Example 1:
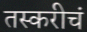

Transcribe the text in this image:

तस्करीचं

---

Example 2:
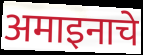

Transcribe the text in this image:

अमाइनाचे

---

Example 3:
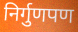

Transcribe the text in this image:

निर्गुणपण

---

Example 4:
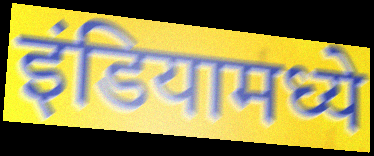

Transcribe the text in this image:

इंडियामध्ये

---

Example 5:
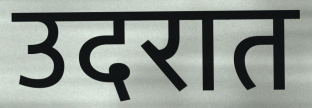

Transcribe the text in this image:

उदरात